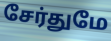
சேர்துமே